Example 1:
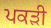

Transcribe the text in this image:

ਪਕੜੀ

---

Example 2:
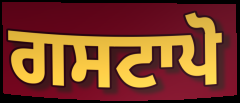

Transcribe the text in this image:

ਗਸਟਾਪੋ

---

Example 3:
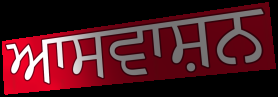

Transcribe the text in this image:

ਆਸਵਾਸ਼ਨ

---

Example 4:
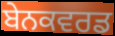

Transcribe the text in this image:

ਬੇਨਕਵਰਡ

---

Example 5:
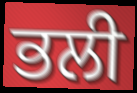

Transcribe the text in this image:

ਭਲੀ